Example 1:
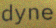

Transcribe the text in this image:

dyne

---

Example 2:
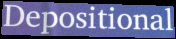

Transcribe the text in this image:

Depositional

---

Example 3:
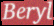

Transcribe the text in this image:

Beryl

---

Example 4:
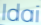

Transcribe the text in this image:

Idai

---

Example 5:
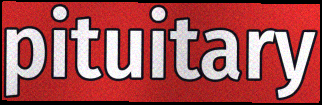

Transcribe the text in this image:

pituitary